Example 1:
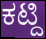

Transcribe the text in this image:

ಕಟ್ದಿ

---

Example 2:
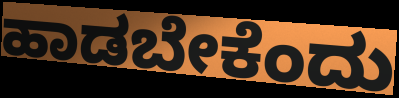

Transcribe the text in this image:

ಹಾಡಬೇಕೆಂದು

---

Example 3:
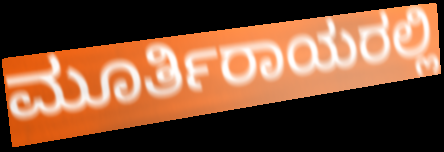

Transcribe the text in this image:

ಮೂರ್ತಿರಾಯರಲ್ಲಿ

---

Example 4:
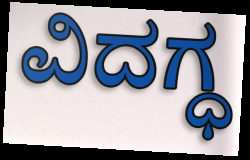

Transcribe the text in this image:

ವಿದಗ್ಧ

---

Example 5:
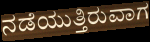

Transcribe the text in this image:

ನಡೆಯುತ್ತಿರುವಾಗ